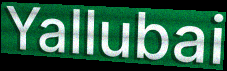
Yallubai